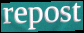
repost